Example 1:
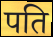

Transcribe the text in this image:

पति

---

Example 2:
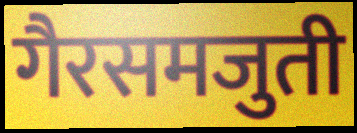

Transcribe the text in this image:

गैरसमजुती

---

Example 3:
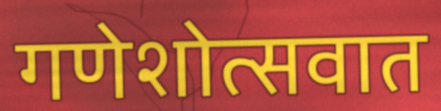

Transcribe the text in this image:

गणेशोत्सवात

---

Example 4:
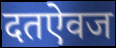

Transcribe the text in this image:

दतऐवज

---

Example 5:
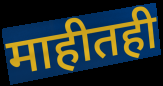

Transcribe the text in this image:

माहीतही